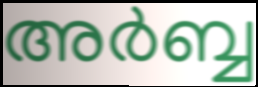
അർബ്ബ